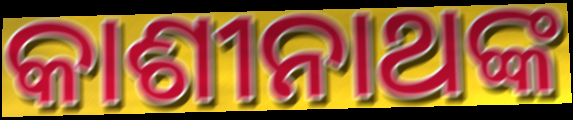
କାଶୀନାଥଙ୍କ